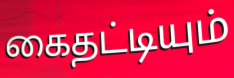
கைதட்டியும்